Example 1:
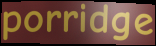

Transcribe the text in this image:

porridge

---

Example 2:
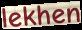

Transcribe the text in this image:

lekhen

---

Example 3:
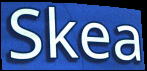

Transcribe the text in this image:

Skea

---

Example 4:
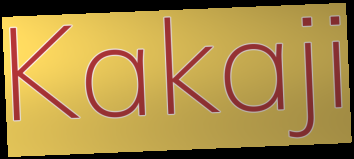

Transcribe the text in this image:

Kakaji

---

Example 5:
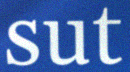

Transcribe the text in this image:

sut